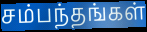
சம்பந்தங்கள்